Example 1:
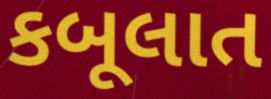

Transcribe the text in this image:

કબૂલાત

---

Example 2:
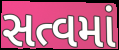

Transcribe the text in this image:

સત્વમાં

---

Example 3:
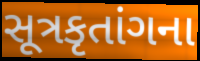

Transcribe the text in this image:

સૂત્રકૃતાંગના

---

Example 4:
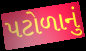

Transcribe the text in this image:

પટોળાનું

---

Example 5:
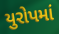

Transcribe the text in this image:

યુરોપમાં